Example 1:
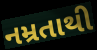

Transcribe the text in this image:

નમ્રતાથી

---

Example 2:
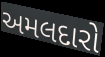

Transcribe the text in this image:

અમલદારો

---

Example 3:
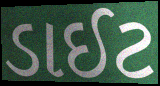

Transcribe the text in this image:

ડાઈટ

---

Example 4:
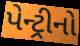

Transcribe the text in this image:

પેન્ટ્રીનો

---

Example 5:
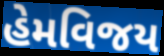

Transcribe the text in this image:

હેમવિજય